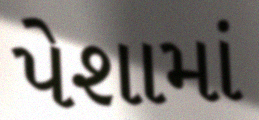
પેશામાં